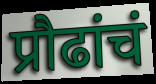
प्रौढांचं